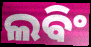
ଲବିଂ